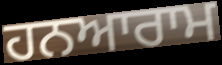
ਹਨਆਰਾਮ